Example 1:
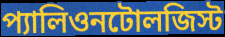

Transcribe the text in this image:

প্যালিওনটোলজিস্ট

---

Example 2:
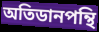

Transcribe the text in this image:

অতিডানপন্থি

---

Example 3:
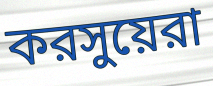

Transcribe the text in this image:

করসুয়েরা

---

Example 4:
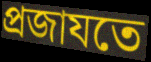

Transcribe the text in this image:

প্রজাযতে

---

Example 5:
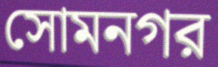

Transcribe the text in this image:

সোমনগর